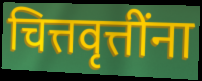
चित्तवृत्तींना